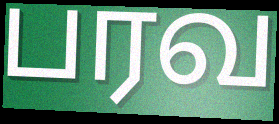
பரவ